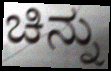
ಚಿನ್ನು